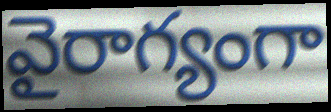
వైరాగ్యంగా